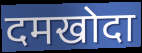
दमखोदा